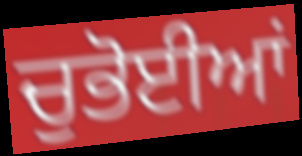
ਚੁਭੋਈਆਂ